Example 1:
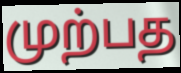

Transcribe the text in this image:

முற்பத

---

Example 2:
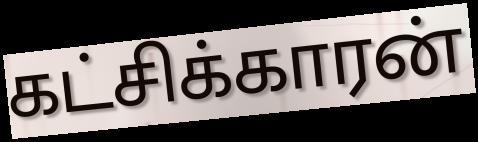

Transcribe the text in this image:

கட்சிக்காரன்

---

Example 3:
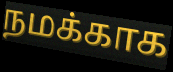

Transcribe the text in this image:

நமக்காக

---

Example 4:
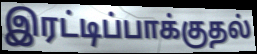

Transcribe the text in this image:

இரட்டிப்பாக்குதல்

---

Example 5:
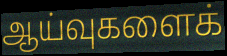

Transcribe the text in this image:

ஆய்வுகளைக்